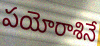
పయోరాశినే